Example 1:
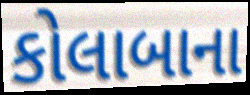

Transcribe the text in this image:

કોલાબાના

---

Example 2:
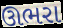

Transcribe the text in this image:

ઊભરા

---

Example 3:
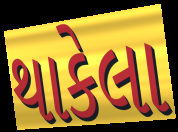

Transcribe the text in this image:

થાકેલા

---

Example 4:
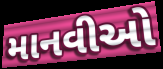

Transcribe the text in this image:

માનવીઓ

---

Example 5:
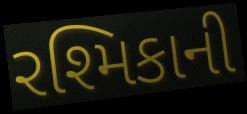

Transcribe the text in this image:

રશ્મિકાની